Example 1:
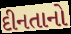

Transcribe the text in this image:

દીનતાનો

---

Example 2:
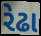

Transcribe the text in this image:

રેઢા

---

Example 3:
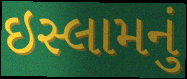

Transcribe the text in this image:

ઇસ્લામનું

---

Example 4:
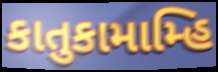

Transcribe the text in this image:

કાતુકામામ્હિ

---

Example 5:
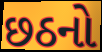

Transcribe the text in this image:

છઠનો